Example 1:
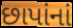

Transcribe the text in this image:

છાપાંનાં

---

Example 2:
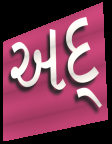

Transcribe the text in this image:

અદ્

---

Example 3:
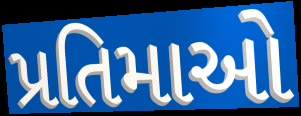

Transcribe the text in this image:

પ્રતિમાઓ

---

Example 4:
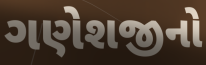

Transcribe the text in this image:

ગણેશજીનો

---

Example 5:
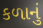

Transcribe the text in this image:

કળાનું